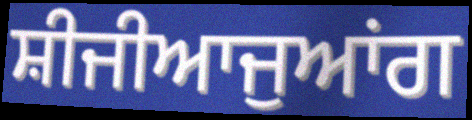
ਸ਼ੀਜੀਆਜੁਆਂਗ